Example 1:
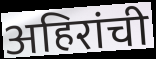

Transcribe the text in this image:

अहिरांची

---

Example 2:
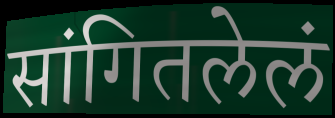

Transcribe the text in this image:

सांगितलेलं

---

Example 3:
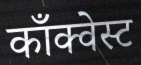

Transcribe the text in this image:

काँक्वेस्ट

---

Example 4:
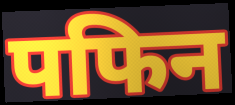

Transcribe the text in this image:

पफिन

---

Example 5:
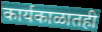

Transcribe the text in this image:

कार्यकाळातही